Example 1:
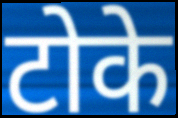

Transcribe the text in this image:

टोके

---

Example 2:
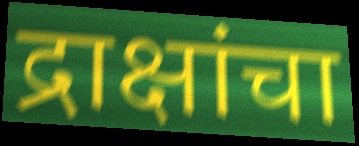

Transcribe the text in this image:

द्राक्षांचा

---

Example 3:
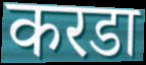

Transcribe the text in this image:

करडा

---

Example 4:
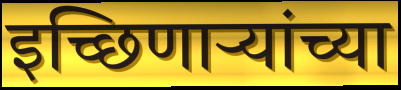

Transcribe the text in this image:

इच्छिणार्‍यांच्या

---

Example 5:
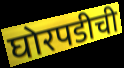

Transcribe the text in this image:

घोरपडीची